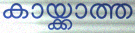
കായ്ക്കാത്ത